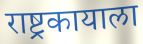
राष्ट्रकायाला